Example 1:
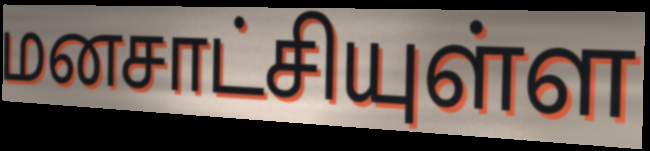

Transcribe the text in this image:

மனசாட்சியுள்ள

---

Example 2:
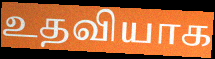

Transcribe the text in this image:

உதவியாக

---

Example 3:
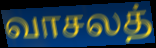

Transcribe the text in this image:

வாசலத்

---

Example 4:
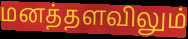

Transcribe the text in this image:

மனத்தளவிலும்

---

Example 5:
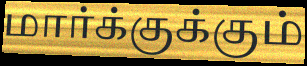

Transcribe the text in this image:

மார்க்குக்கும்